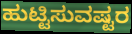
ಹುಟ್ಟಿಸುವಷ್ಟರ